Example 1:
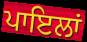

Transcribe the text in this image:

ਪਾਇਲਾਂ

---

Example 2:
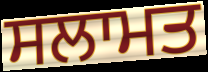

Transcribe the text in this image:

ਸਲਾਮਤ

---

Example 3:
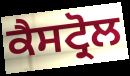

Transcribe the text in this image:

ਕੈਸਟ੍ਰੋਲ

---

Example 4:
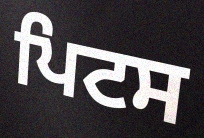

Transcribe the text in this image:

ਪਿਟਸ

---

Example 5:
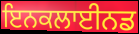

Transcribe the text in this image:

ਇਨਕਲਾਈਨਡ